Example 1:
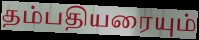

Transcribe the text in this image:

தம்பதியரையும்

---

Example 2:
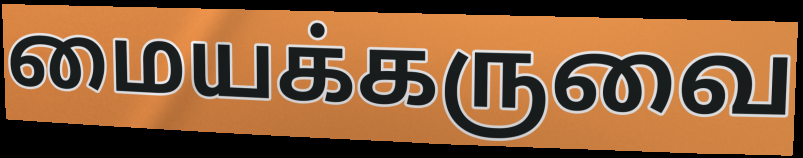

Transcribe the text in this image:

மையக்கருவை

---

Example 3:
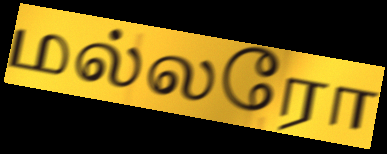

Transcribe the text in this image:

மல்லரோ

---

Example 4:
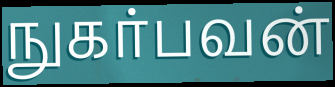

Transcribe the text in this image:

நுகர்பவன்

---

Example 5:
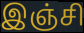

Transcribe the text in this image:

இஞ்சி